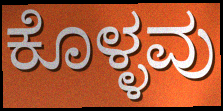
ಕೊಳ್ಳವು